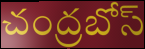
చంద్రబోస్